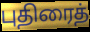
புதிரைத்